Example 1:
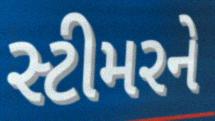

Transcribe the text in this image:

સ્ટીમરને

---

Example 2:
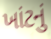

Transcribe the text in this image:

ખાંટનું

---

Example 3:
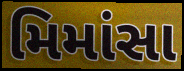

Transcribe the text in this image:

મિમાંસા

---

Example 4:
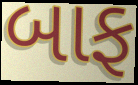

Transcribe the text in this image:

બાફ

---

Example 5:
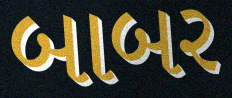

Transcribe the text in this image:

બાબર